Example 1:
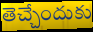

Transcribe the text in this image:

తెచ్చేందుకు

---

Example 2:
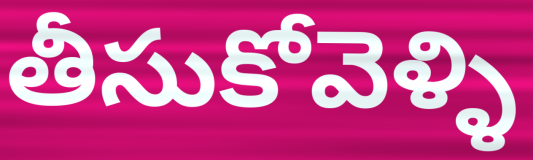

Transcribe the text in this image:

తీసుకోవెళ్ళి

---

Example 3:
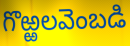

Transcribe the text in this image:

గొఱ్ఱలవెంబడి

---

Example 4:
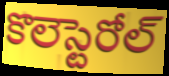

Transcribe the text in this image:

కొలెస్టెరోల్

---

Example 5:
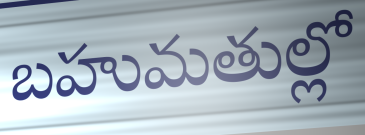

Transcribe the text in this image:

బహుమతుల్లో